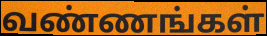
வண்ணங்கள்